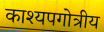
काश्यपगोत्रीय